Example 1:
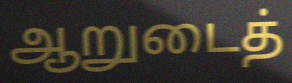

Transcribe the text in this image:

ஆறுடைத்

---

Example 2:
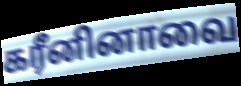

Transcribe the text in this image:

கரீனினாவை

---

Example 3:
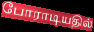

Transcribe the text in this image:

போராடியதில்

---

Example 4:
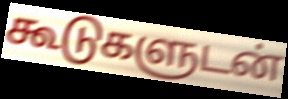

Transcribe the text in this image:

கூடுகளுடன்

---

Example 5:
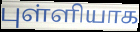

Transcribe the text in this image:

புள்ளியாக